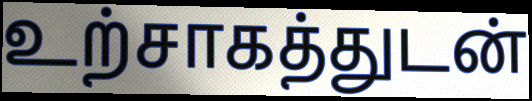
உற்சாகத்துடன்